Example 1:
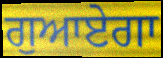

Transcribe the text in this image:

ਗੁਆਏਗਾ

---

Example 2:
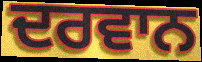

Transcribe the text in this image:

ਦਰਵਾਨ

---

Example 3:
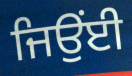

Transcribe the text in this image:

ਜਿਉਂਈ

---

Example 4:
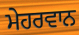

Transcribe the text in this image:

ਮੇਹਰਵਾਨ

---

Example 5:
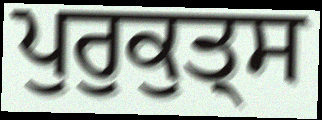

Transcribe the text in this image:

ਪੁਰੁਕੁਤ੍ਸ